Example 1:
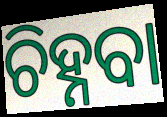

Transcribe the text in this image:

ଚିହ୍ନବା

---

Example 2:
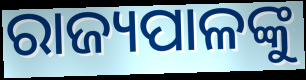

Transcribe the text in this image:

ରାଜ୍ୟପାଳଙ୍କୁ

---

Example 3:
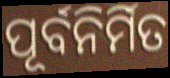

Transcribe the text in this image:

ପୂର୍ବନିର୍ମିତ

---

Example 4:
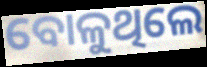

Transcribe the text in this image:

ବୋଳୁଥିଲେ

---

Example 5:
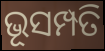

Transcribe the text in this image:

ଭୂସମ୍ପତି